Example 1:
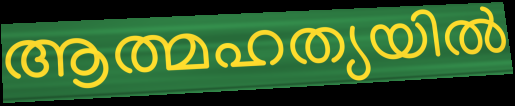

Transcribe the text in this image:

ആത്മഹത്യയിൽ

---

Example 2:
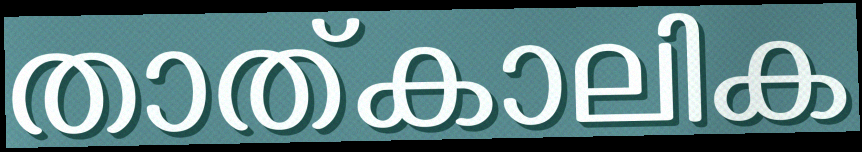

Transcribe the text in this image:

താത്കാലിക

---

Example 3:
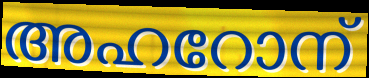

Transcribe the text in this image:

അഹറോന്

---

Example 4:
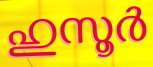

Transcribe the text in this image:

ഹുസൂർ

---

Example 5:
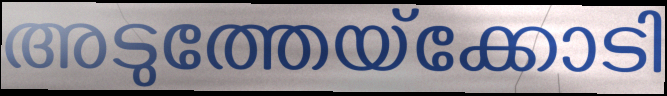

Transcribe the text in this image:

അടുത്തേയ്‌ക്കോടി